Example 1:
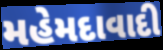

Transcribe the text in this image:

મહેમદાવાદી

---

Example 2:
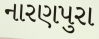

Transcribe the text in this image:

નારણપુરા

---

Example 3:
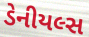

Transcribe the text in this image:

ડેનીયલ્સ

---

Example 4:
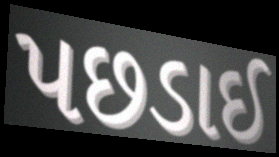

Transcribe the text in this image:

પછડાઈ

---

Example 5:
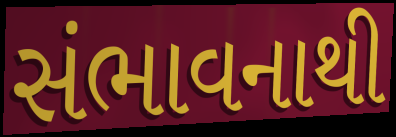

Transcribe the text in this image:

સંભાવનાથી